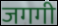
जगगी